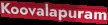
Koovalapuram